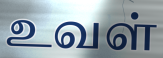
உவள்